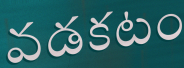
వడకటం